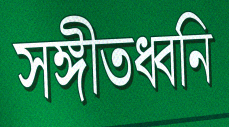
সঙ্গীতধ্বনি